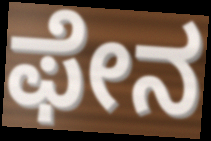
ಫೇನ